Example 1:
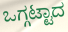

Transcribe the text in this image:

ಒಗ್ಗಟ್ಟಾದ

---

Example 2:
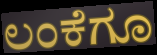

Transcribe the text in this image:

ಲಂಕೆಗೂ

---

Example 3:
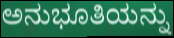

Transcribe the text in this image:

ಅನುಭೂತಿಯನ್ನು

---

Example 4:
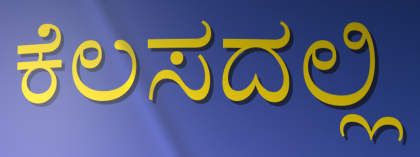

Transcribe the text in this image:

ಕೆಲಸದಲ್ಲಿ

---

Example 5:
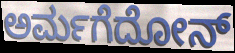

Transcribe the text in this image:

ಅರ್ಮಗೆದೋನ್